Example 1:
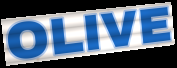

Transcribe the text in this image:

OLIVE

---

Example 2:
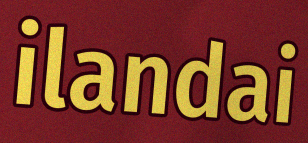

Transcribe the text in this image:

ilandai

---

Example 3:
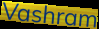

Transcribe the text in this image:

Vashram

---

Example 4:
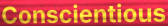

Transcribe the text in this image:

Conscientious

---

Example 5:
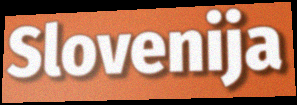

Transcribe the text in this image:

Slovenija